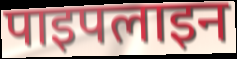
पाइपलाइन